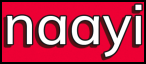
naayi